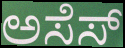
ಅಸೆಸ್